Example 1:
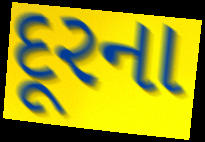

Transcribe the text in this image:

દૂરના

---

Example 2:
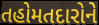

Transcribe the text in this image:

તહોમતદારોને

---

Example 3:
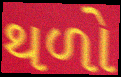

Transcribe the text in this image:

થળો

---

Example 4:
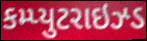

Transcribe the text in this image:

કમ્પ્યુટરાઇઝ્ડ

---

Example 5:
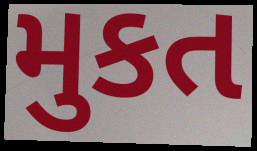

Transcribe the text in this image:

મુકત